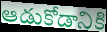
ఆడుకోడానికి